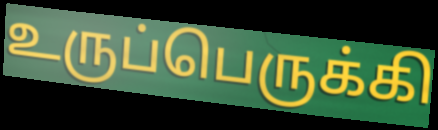
உருப்பெருக்கி